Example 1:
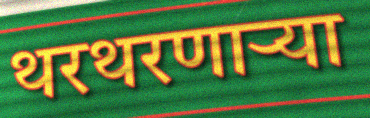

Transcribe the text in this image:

थरथरणाऱ्या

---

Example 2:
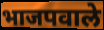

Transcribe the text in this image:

भाजपवाले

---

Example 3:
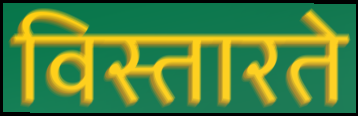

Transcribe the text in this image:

विस्तारते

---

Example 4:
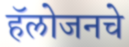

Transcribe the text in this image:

हॅलोजनचे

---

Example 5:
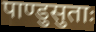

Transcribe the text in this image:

पाण्डुसुताः